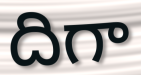
దిగా